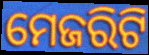
ମେଜରିଟି